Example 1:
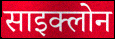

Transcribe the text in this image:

साइक्लोन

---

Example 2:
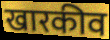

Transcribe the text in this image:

खारकीव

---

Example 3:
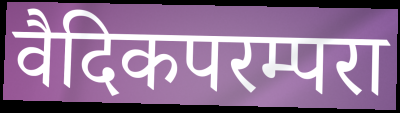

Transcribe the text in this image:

वैदिकपरम्परा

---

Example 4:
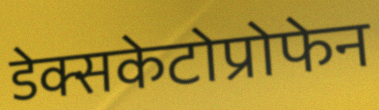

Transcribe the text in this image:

डेक्सकेटोप्रोफेन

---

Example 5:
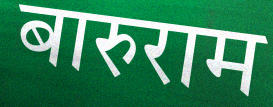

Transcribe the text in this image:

बारुराम